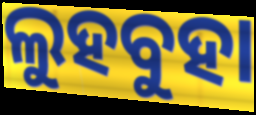
ଲୁହବୁହା